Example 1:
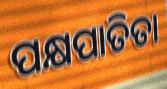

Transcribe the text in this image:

ପକ୍ଷପାତିତା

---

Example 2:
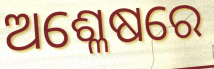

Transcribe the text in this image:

ଅଶ୍ଳେଷରେ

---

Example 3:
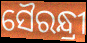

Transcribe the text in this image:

ସୈରନ୍ଧ୍ରୀ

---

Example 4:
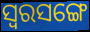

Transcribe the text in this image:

ସ୍ୱରସଙ୍ଗେ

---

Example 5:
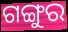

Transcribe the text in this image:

ଗଙ୍ଗୁର